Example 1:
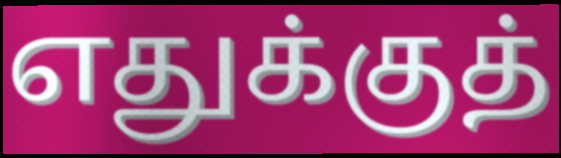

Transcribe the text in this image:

எதுக்குத்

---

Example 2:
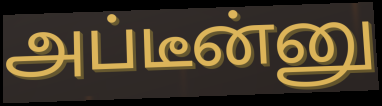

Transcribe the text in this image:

அப்டீன்னு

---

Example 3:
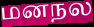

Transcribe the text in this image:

மனநல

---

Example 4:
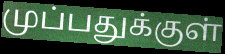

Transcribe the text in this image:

முப்பதுக்குள்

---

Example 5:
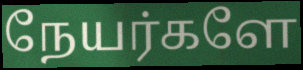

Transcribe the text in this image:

நேயர்களே